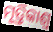
ମୃତ୍ତିକାଶ୍ୱ